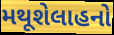
મથૂશેલાહનો